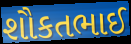
શૌકતભાઈ